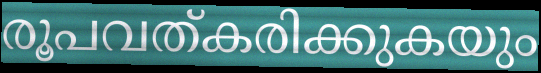
രൂപവത്കരിക്കുകയും